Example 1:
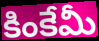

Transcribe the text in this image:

కింకేమీ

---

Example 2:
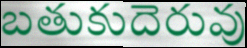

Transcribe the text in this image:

బతుకుదెరువు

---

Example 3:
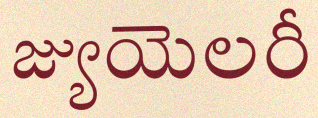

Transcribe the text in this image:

జ్యుయెలరీ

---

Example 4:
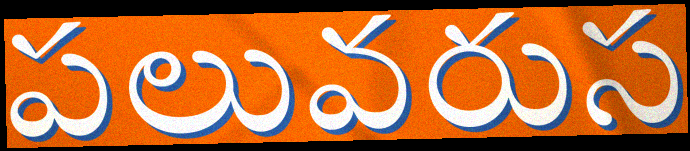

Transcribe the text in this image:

పలువరుస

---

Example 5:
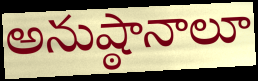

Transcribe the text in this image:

అనుష్ఠానాలూ